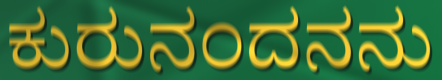
ಕುರುನಂದನನು